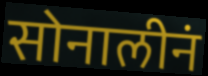
सोनालीनं